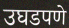
उघडपणे